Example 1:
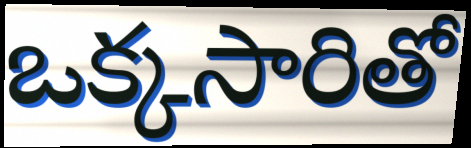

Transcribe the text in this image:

ఒక్కసారితో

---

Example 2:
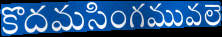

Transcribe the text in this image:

కొదమసింగమువలె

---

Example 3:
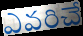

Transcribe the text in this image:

ఎవరిచే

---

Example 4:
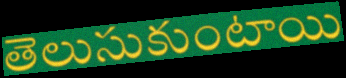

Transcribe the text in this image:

తెలుసుకుంటాయి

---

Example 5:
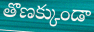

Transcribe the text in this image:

తొణక్కుండా